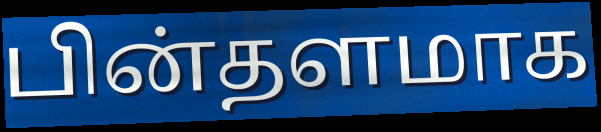
பின்தளமாக